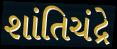
શાંતિચંદ્રે